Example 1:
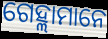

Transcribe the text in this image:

ଗେହ୍ଲାମାନେ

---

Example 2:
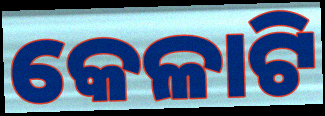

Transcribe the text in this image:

କେଳାଟି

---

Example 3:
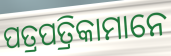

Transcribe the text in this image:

ପତ୍ରପତ୍ରିକାମାନେ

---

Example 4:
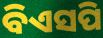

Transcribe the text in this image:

ବିଏସପି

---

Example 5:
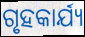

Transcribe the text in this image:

ଗୃହକାର୍ଯ୍ୟ